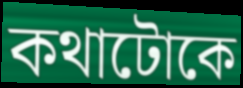
কথাটোকে